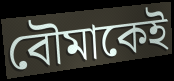
বৌমাকেই